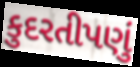
કુદરતીપણું